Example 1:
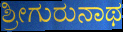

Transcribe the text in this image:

ಶ್ರೀಗುರುನಾಥ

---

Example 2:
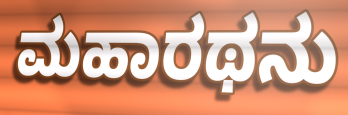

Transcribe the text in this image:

ಮಹಾರಥನು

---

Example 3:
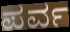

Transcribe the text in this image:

ಪರ್ವ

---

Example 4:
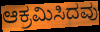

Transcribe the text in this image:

ಆಕ್ರಮಿಸಿದವು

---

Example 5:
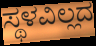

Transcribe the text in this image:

ಸ್ಥಳವಿಲ್ಲದ